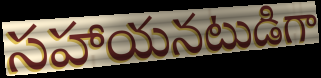
సహాయనటుడిగా